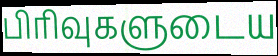
பிரிவுகளுடைய